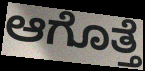
ಆಗೊತ್ತೆ